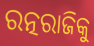
ରତ୍ନରାଜିକୁ